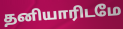
தனியாரிடமே